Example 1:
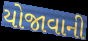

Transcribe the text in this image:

યોજાવાની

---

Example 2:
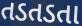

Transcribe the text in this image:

તડતડતા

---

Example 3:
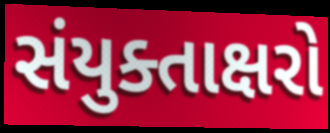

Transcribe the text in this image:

સંયુક્તાક્ષરો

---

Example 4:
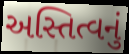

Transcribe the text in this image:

અસ્તિત્વનું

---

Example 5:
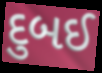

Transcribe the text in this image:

દુબઈ